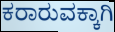
ಕರಾರುವಕ್ಕಾಗಿ